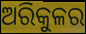
ଅରିକୁଳର